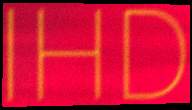
IHD